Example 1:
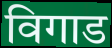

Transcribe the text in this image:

विगाड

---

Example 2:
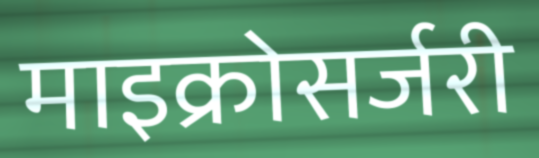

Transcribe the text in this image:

माइक्रोसर्जरी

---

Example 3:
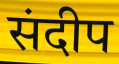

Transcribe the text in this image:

संदीप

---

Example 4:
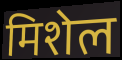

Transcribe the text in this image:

मिशेल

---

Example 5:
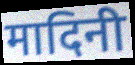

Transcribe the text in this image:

मादिनी